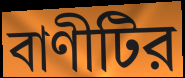
বাণীটির